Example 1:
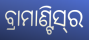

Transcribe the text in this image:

ବ୍ରାମାଣ୍ଟିସ୍‌ର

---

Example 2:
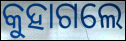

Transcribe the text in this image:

କୁହାଗଲେ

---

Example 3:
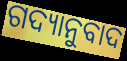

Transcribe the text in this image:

ଗଦ୍ୟାନୁବାଦ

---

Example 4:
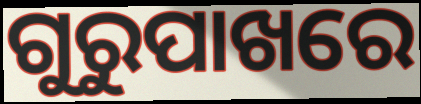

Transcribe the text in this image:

ଗୁରୁପାଖରେ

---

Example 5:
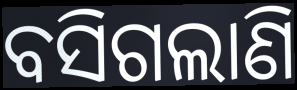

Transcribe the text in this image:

ବସିଗଲାଣି